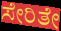
ಸೇರಿತೇ